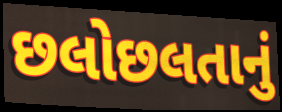
છલોછલતાનું